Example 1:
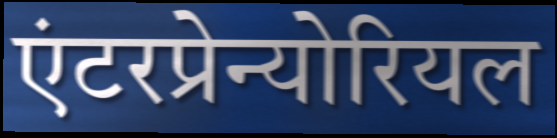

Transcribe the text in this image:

एंटरप्रेन्योरियल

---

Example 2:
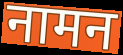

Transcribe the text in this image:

नामन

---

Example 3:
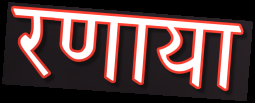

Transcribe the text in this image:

रणाया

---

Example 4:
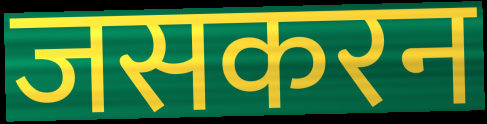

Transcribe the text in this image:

जसकरन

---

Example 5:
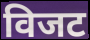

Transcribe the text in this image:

विजट